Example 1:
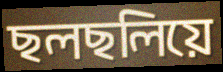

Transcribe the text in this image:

ছলছলিয়ে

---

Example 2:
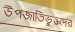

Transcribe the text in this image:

উপজাতিভুক্তদের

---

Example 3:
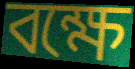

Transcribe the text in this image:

বক্ষে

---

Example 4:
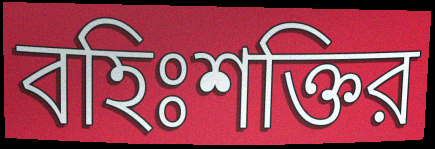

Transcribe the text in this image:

বহিঃশক্তির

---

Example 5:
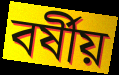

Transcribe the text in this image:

বর্ষীয়